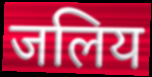
जलिय